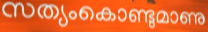
സത്യംകൊണ്ടുമാണു